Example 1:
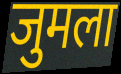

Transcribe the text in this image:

जुमला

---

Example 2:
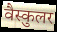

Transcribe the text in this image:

वैस्कुलर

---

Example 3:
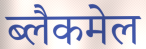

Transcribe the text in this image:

ब्लैकमेल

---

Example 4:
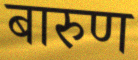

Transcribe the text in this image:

बारुण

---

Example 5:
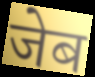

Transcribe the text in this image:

जेब